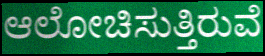
ಆಲೋಚಿಸುತ್ತಿರುವೆ